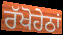
ਰੱਖੋਹੇਠਾਂ